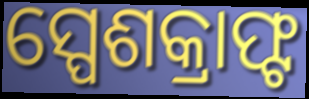
ସ୍ପେଶକ୍ରାଫ୍ଟ